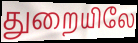
துறையிலே